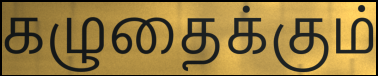
கழுதைக்கும்